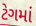
ટેગમાં